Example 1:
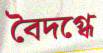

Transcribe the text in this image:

বৈদগ্ধে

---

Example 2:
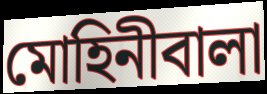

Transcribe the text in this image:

মোহিনীবালা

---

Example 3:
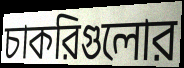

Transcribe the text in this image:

চাকরিগুলোর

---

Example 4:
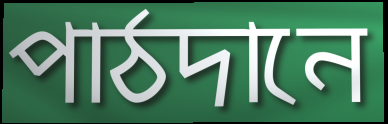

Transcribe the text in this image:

পাঠদানে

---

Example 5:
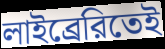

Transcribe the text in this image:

লাইব্রেরিতেই